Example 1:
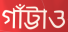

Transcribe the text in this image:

গাঁট্টাও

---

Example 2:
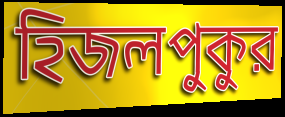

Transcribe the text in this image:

হিজলপুকুর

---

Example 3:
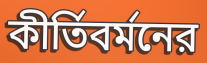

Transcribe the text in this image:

কীর্তিবর্মনের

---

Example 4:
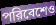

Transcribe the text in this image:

পরিবেশেও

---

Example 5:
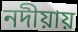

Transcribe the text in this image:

নদীয়ায়